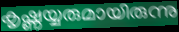
കൃഷ്ണയ്യരുമായിരുന്നു